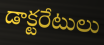
డాక్టరేటులు